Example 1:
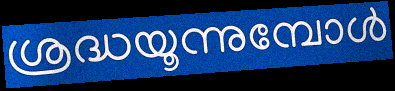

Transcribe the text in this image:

ശ്രദ്ധയൂന്നുമ്പോൾ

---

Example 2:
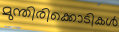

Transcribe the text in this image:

മുന്തിരിക്കൊടികൾ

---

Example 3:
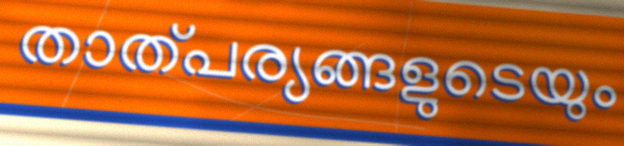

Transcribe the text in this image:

താത്പര്യങ്ങളുടെയും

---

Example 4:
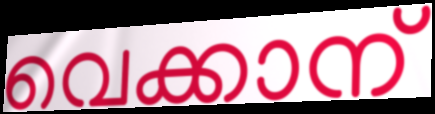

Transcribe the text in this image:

വെക്കാന്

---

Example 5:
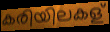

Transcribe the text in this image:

കരിയിലകള്